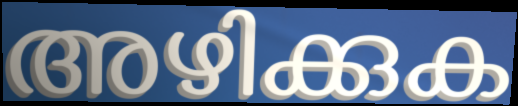
അഴിക്കുക